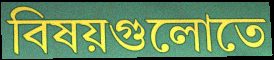
বিষয়গুলোতে